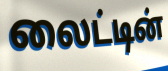
லைட்டின்